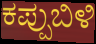
ಕಪ್ಪುಬಿಳಿ